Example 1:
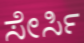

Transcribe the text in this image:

ಸೇರ್ಸಿ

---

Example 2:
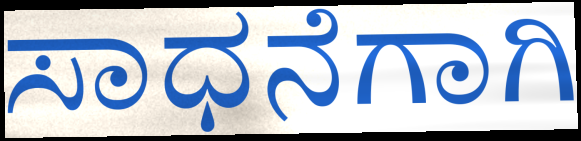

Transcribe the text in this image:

ಸಾಧನೆಗಾಗಿ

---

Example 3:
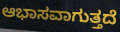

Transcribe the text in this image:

ಆಭಾಸವಾಗುತ್ತದೆ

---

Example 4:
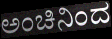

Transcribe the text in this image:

ಅಂಚಿನಿಂದ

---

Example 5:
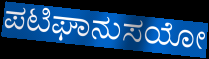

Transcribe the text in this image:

ಪಟಿಘಾನುಸಯೋ